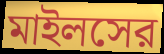
মাইলসের